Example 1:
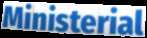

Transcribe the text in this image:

Ministerial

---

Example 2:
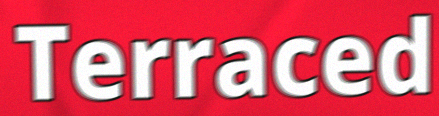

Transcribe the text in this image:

Terraced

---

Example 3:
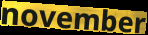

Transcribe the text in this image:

november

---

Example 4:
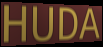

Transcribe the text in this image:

HUDA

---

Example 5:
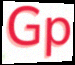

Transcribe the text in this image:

Gp